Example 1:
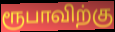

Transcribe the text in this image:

ரூபாவிற்கு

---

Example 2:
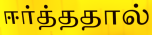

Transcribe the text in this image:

ஈர்த்ததால்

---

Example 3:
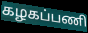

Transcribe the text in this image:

கழகப்பணி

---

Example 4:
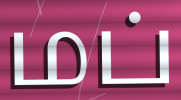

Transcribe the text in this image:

மப்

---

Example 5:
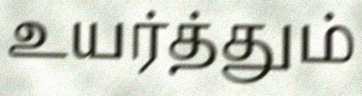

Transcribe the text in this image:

உயர்த்தும்